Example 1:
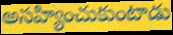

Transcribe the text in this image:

అసహ్యించుకుంటాడు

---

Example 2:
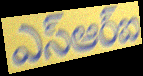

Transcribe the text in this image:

ఎస్ఆర్ఐ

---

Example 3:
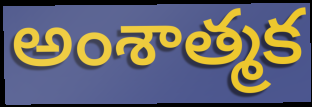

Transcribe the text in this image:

అంశాత్మక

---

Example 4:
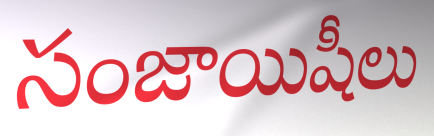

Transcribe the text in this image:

సంజాయిషీలు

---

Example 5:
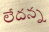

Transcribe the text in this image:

లేదన్న